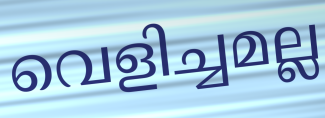
വെളിച്ചമല്ല